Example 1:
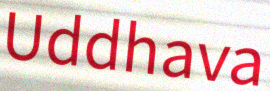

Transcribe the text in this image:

Uddhava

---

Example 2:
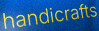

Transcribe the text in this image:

handicrafts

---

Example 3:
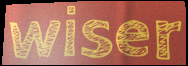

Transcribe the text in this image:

wiser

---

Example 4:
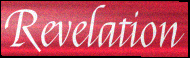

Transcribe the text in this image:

Revelation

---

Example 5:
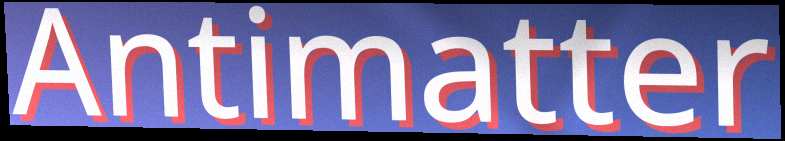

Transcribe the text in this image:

Antimatter